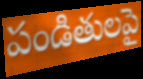
పండితులపై